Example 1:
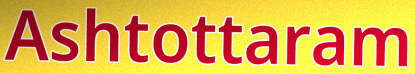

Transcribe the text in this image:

Ashtottaram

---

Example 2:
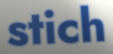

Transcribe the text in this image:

stich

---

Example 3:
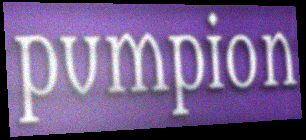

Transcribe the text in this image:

pumpion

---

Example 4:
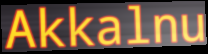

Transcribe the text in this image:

Akkalnu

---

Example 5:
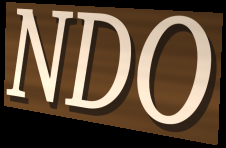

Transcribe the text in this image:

NDO